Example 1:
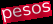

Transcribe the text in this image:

pesos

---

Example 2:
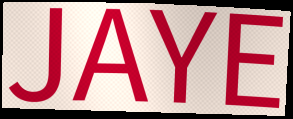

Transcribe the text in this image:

JAYE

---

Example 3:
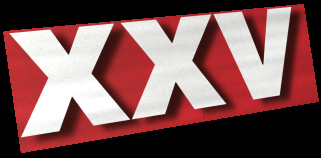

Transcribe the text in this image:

xxv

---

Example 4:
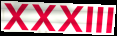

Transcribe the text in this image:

XXXIII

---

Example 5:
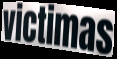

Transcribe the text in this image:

victimas